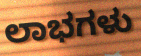
ಲಾಭಗಳು